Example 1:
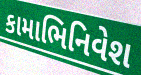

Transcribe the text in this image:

કામાભિનિવેશ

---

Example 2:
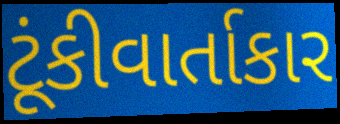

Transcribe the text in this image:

ટૂંકીવાર્તાકાર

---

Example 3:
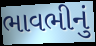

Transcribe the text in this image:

ભાવભીનું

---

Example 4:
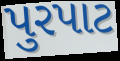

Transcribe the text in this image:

પુરપાટ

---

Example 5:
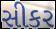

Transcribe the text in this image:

સીકર